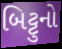
બિટ્ટુનો